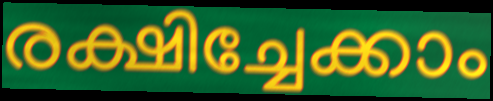
രക്ഷിച്ചേക്കാം